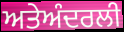
ਅਤੇਅੰਦਰਲੀ